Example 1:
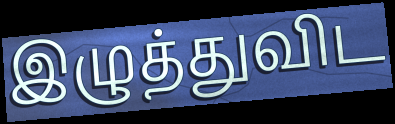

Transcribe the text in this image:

இழுத்துவிட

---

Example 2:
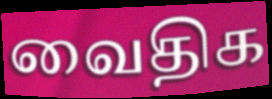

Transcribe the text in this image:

வைதிக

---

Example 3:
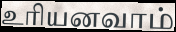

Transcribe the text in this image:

உரியனவாம்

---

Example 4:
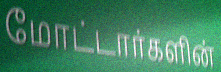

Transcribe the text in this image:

மோட்டார்களின்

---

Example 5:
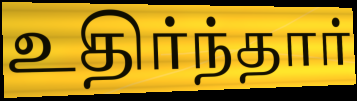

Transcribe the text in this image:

உதிர்ந்தார்